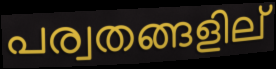
പര്വതങ്ങളില്